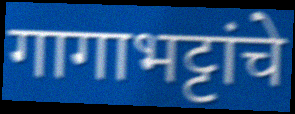
गागाभट्टांचे